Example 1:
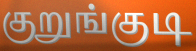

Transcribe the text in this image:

குறுங்குடி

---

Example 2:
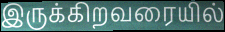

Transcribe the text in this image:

இருக்கிறவரையில்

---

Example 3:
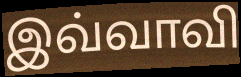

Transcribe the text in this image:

இவ்வாவி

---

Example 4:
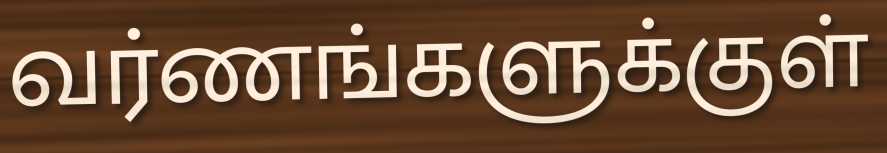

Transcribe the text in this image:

வர்ணங்களுக்குள்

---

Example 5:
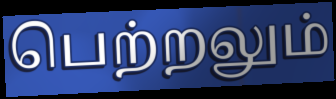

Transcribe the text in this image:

பெற்றலும்